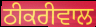
ਠੀਕਰੀਵਾਲ